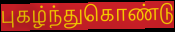
புகழ்ந்துகொண்டு